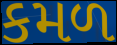
કમળ